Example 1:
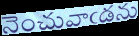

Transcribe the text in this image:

నెంచువాఁడను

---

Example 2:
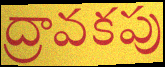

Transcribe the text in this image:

ద్రావకపు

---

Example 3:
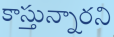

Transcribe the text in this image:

కాస్తున్నారని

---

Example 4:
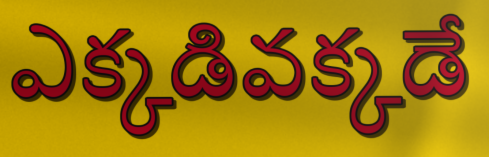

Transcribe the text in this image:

ఎక్కడివక్కడే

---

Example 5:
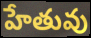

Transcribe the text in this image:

హేతువు